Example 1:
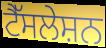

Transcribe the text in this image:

ਟੈੱਸਲੇਸ਼ਨ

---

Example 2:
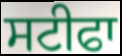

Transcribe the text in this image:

ਸਟੀਫਾ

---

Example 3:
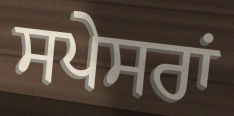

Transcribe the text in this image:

ਸਪੇਸਰਾਂ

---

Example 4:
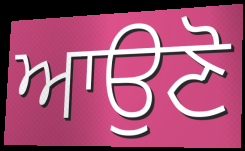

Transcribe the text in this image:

ਆਉਣੋ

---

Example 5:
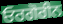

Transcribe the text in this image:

ਓਰਗੋਰੀਨ